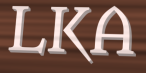
LKA